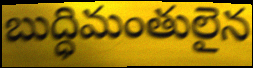
బుద్ధిమంతులైన